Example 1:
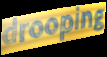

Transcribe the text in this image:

drooping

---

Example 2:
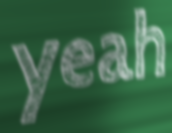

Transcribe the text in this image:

yeah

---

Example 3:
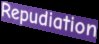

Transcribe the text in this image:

Repudiation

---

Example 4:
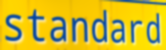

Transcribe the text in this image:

standard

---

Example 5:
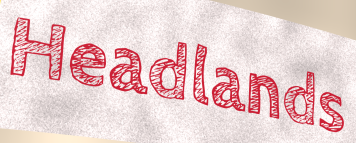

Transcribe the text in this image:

Headlands